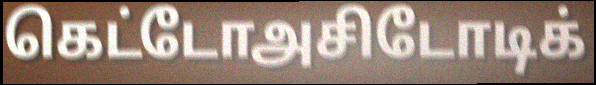
கெட்டோஅசிடோடிக்